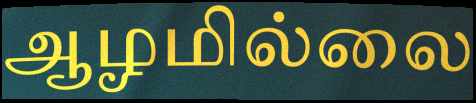
ஆழமில்லை